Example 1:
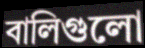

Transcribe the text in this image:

বালিগুলো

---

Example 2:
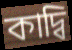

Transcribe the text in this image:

কাদ্বি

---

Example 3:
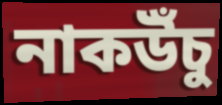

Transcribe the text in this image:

নাকউঁচু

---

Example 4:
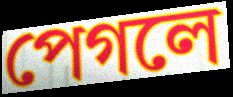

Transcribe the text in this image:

পেগলে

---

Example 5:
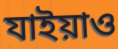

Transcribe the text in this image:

যাইয়াও